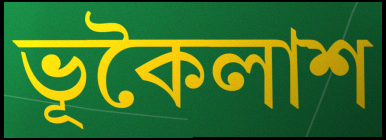
ভূকৈলাশ